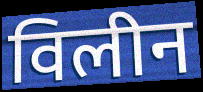
विलीन